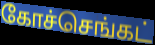
கோச்செங்கட்